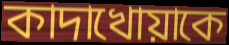
কাদাখোয়াকে